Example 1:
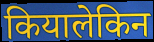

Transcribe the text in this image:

कियालेकिन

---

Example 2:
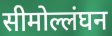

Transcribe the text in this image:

सीमोल्लंघन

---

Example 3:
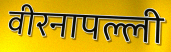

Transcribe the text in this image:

वीरनापल्ली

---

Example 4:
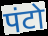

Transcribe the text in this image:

पंटो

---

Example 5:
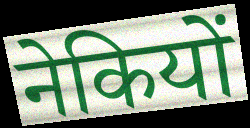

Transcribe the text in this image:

नेकियों